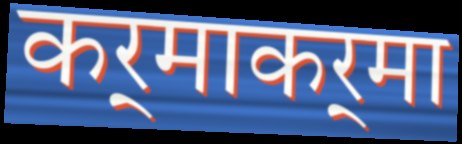
कर्माकर्मा